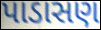
પાડાસણ